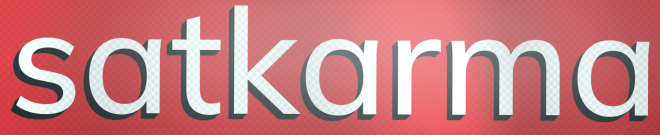
satkarma